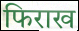
फिराख